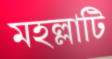
মহল্লাটি